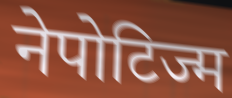
नेपोटिज्म